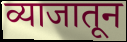
व्याजातून